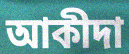
আকীদা